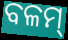
ବଳମ୍